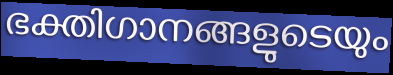
ഭക്തിഗാനങ്ങളുടെയും